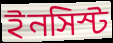
ইনসিস্ট